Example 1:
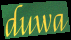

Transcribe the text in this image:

duwa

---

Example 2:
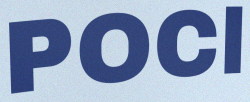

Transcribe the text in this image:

POCl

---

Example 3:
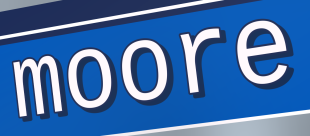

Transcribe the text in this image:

moore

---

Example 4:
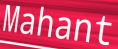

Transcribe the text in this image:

Mahant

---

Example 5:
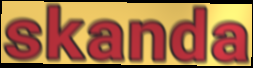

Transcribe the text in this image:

skanda